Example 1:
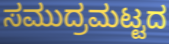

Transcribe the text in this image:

ಸಮುದ್ರಮಟ್ಟದ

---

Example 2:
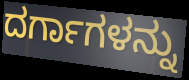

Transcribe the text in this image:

ದರ್ಗಾಗಳನ್ನು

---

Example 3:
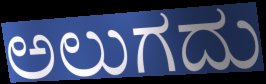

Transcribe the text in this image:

ಅಲುಗದು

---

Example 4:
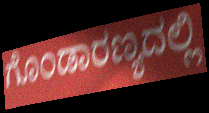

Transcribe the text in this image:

ಗೊಂಡಾರಣ್ಯದಲ್ಲಿ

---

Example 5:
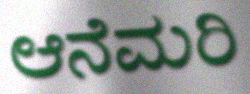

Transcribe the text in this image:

ಆನೆಮರಿ